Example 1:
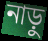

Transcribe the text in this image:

নাড়ু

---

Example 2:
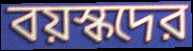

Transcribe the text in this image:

বয়স্কদের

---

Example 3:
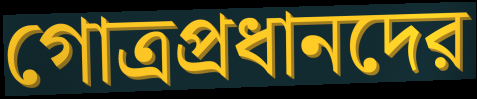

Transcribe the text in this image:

গোত্রপ্রধানদের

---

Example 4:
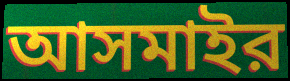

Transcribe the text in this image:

আসমাইর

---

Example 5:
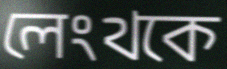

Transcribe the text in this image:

লেংথকে